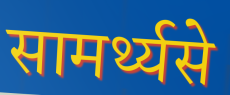
सामर्थ्यसे